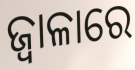
ଜ୍ଵାଳାରେ